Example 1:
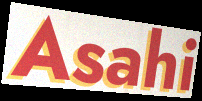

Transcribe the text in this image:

Asahi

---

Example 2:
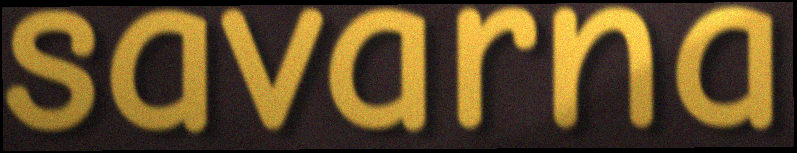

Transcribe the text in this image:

savarna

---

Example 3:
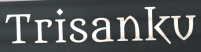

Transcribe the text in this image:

Trisanku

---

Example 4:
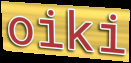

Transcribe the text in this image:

oiki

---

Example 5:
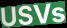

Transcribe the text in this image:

USVs